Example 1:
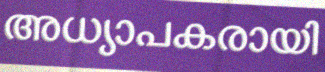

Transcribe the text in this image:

അധ്യാപകരായി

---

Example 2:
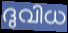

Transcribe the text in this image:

ദുവിധ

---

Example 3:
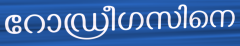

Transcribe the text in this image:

റോഡ്രീഗസിനെ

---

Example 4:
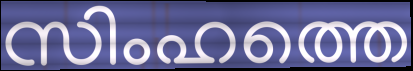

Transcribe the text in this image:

സിംഹത്തെ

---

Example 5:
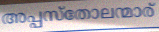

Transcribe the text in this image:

അപ്പസ്തോലന്മാര്